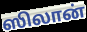
ஸிலான்